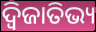
ଦ୍ବିଜାତିଭ୍ୟ